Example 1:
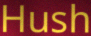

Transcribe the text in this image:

Hush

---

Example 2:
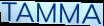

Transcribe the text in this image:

TAMMA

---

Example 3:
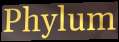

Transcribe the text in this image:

Phylum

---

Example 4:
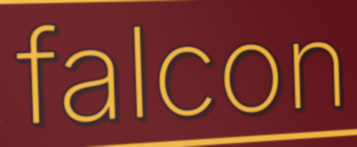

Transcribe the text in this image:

falcon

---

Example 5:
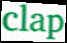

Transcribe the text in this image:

clap